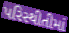
પરિસ્થીતીમાં